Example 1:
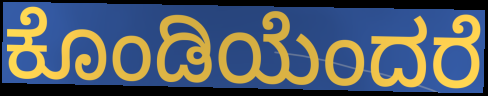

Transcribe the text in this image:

ಕೊಂಡಿಯೆಂದರೆ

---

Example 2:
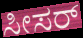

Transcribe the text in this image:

ಸೀಸರ್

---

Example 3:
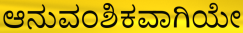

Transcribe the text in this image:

ಆನುವಂಶಿಕವಾಗಿಯೇ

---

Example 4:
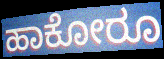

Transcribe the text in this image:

ಹಾಕೋರೂ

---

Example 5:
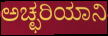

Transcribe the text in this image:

ಅಚ್ಛರಿಯಾನಿ